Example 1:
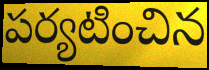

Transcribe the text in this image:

పర్యటించిన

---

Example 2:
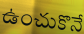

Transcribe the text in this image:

ఉంచుకొనే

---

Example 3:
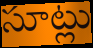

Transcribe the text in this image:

సూట్లు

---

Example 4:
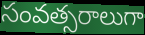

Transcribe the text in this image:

సంవత్సరాలుగా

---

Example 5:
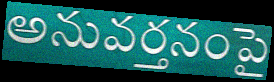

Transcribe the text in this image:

అనువర్తనంపై